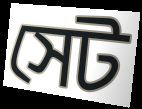
সেট